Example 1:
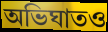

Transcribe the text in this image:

অভিঘাতও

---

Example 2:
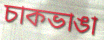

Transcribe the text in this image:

চাকভাঙা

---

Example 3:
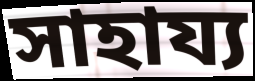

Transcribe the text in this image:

সাহায্য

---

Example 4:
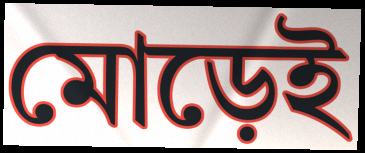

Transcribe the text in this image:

মোড়েই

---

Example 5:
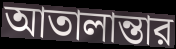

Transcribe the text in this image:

আতালান্তার